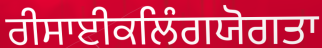
ਰੀਸਾਈਕਲਿੰਗਯੋਗਤਾ